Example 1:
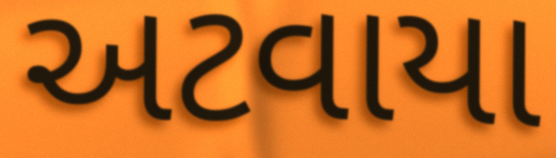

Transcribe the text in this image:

અટવાયા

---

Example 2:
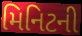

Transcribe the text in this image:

મિનિટની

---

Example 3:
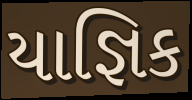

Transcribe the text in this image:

યાજ્ઞિક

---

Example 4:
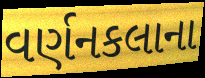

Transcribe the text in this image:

વર્ણનકલાના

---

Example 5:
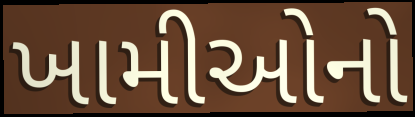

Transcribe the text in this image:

ખામીઓનો